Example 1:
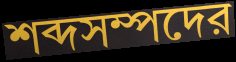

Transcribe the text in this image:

শব্দসম্পদের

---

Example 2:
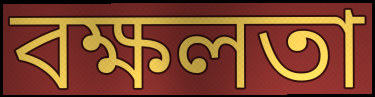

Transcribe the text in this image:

বক্ষলতা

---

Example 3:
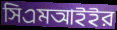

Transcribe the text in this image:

সিএমআইইর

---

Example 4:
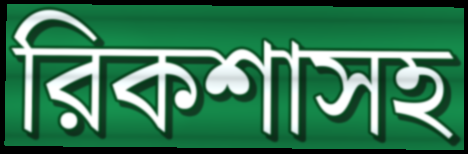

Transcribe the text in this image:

রিকশাসহ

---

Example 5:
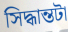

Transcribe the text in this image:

সিদ্ধান্তটা